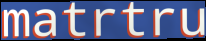
matrtru